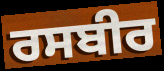
ਰਸਬੀਰ